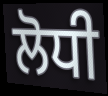
ਲੋਧੀ